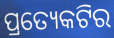
ପ୍ରତ୍ୟେକଟିର